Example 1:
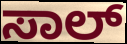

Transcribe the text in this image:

ಸಾಲ್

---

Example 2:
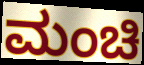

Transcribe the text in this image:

ಮಂಚಿ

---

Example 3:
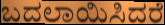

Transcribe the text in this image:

ಬದಲಾಯಿಸಿದರೆ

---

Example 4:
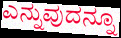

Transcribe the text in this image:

ಎನ್ನುವುದನ್ನೂ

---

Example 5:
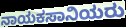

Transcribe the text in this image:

ನಾಯಕಸಾನಿಯರು